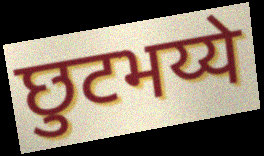
छुटभय्ये